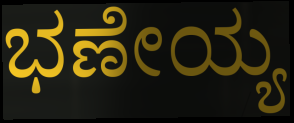
ಭಣೇಯ್ಯ